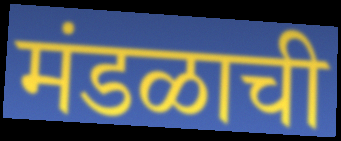
मंडळाची